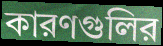
কারণগুলির